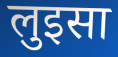
लुइसा